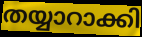
തയ്യാറാക്കി